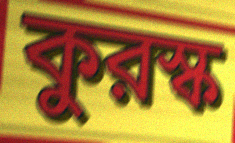
কুরস্ক